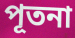
পূতনা